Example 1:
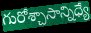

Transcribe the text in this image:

గురోశ్చాసాన్నిధ్యే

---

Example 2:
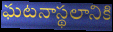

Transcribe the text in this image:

ఘటనాస్థలానికి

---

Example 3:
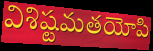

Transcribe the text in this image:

విశిష్టమతయోపి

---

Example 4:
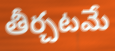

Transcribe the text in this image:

తీర్చటమే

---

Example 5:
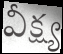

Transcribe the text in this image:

వీక్ష్య